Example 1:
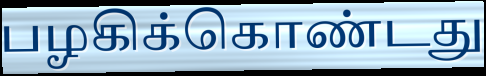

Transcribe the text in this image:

பழகிக்கொண்டது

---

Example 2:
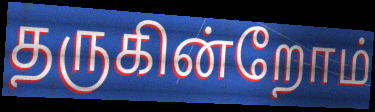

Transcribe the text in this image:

தருகின்றோம்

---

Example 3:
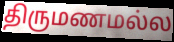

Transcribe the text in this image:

திருமணமல்ல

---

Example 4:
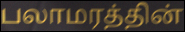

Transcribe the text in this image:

பலாமரத்தின்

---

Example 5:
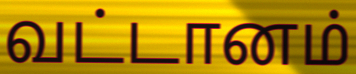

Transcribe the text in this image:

வட்டானம்